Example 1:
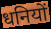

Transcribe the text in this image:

धनियों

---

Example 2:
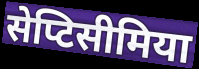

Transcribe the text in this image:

सेप्टिसीमिया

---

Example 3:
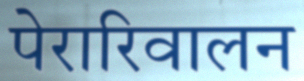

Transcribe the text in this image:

पेरारिवालन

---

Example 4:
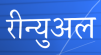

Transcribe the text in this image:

रीन्युअल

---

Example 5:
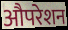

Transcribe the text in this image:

औपरेशन